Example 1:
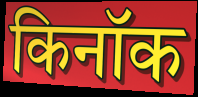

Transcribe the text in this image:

किनॉक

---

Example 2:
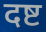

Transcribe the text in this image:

दष्ट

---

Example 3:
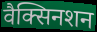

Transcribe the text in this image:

वैक्सिनशन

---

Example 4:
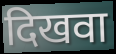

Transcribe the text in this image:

दिखवा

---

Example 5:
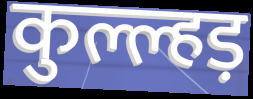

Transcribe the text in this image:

कुल्ल्हड़